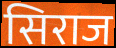
सिराज